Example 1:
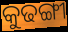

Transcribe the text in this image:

କୁଢଙ୍ଗୀ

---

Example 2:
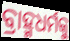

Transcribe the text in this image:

ବ୍ରାହ୍ମଧର୍ମକୁ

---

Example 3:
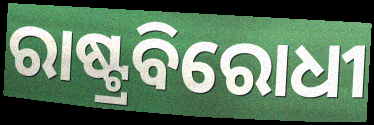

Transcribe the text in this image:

ରାଷ୍ଟ୍ରବିରୋଧୀ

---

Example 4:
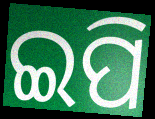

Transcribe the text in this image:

ଇପି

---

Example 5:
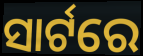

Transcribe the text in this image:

ସାର୍ଟରେ